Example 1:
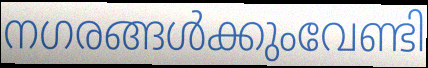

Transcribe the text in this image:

നഗരങ്ങൾക്കുംവേണ്ടി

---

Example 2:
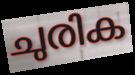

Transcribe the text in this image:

ചുരിക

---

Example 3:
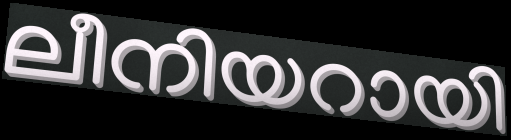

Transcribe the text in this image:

ലീനിയറായി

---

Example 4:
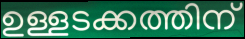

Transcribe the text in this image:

ഉള്ളടക്കത്തിന്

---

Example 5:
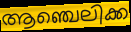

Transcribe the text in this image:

ആഞ്ചെലിക്ക